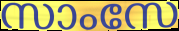
സാംസേ